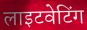
लाइटवेटिंग